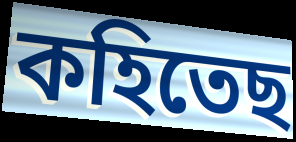
কহিতেছ